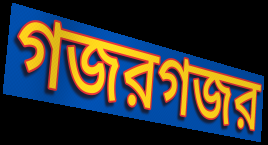
গজরগজর